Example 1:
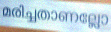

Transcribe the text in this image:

മരിച്ചതാണല്ലോ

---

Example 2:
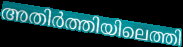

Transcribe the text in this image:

അതിർത്തിയിലെത്തി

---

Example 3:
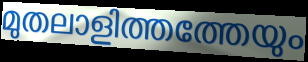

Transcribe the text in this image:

മുതലാളിത്തത്തേയും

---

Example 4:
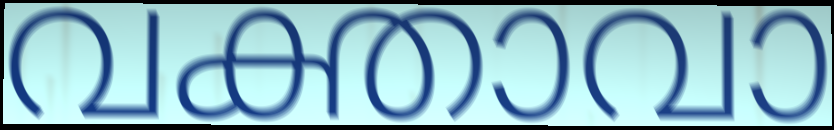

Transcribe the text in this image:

വക്താവാ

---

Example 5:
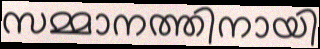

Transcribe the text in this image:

സമ്മാനത്തിനായി